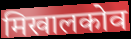
मिखालकोव